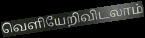
வெளியேறிவிடலாம்